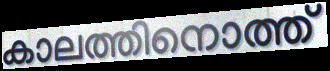
കാലത്തിനൊത്ത്